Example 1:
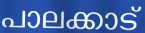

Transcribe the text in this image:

പാലക്കാട്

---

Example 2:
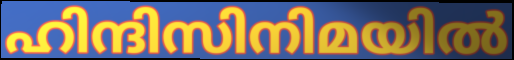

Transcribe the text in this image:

ഹിന്ദിസിനിമയിൽ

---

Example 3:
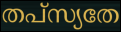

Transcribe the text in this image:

തപ്സ്യതേ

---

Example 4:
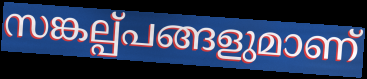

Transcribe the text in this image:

സങ്കല്പ്പങ്ങളുമാണ്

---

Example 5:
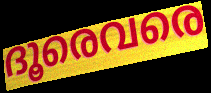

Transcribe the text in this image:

ദൂരെവരെ